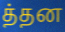
த்தன